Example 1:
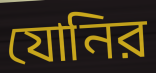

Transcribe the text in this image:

যোনির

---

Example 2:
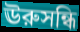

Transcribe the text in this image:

ঊরুসন্ধি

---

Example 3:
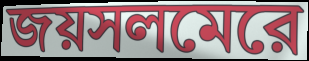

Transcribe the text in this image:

জয়সলমেরে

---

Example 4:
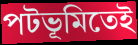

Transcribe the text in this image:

পটভূমিতেই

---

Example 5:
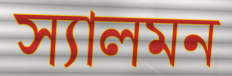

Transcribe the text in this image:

স্যালমন